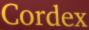
Cordex